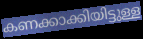
കണക്കാക്കിയിട്ടുള്ള